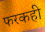
फरकही